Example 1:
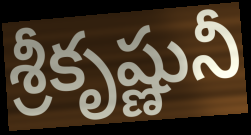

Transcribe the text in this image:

శ్రీకృష్ణునీ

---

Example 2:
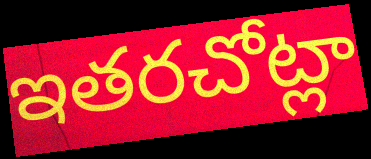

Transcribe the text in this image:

ఇతరచోట్లా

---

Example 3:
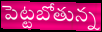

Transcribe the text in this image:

పెట్టబోతున్న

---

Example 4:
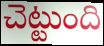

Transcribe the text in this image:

చెట్టుంది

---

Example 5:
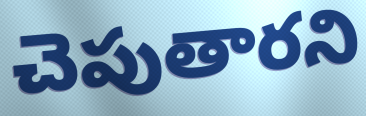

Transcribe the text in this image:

చెపుతారని